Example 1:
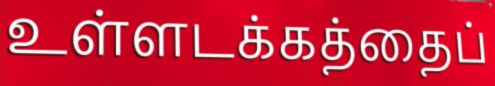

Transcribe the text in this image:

உள்ளடக்கத்தைப்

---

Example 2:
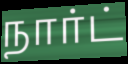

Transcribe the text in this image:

நார்ட்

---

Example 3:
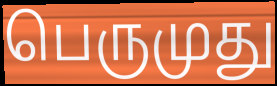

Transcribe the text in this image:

பெருமுது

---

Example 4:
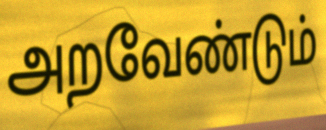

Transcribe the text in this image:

அறவேண்டும்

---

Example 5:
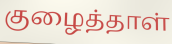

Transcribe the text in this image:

குழைத்தாள்